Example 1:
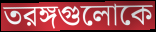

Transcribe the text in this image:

তরঙ্গগুলোকে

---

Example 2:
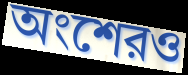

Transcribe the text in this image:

অংশেরও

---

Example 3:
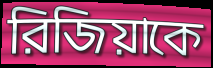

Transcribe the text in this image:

রিজিয়াকে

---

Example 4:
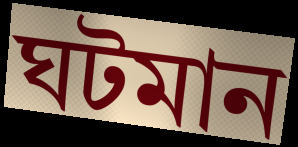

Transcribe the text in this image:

ঘটমান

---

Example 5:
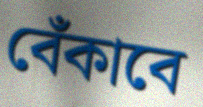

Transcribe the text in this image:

বেঁকাবে